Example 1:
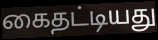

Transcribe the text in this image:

கைதட்டியது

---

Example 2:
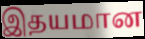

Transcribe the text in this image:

இதயமான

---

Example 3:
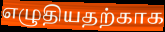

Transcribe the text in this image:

எழுதியதற்காக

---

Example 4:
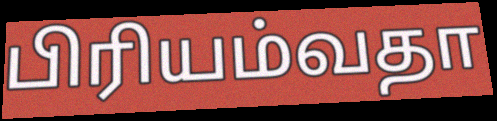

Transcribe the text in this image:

பிரியம்வதா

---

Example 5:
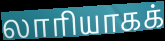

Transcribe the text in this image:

லாரியாகக்